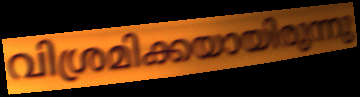
വിശ്രമിക്കയായിരുന്നു